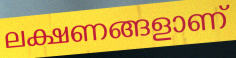
ലക്ഷണങ്ങളാണ്